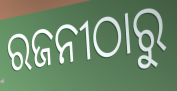
ରଜନୀଠାରୁ